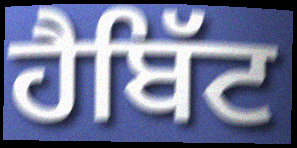
ਹੈਬਿੱਟ